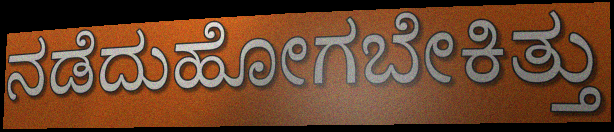
ನಡೆದುಹೋಗಬೇಕಿತ್ತು